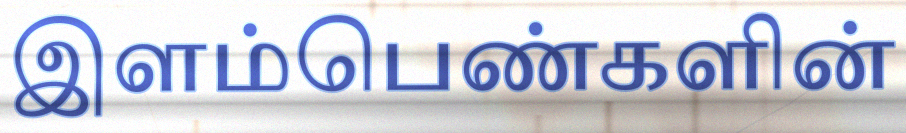
இளம்பெண்களின்